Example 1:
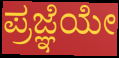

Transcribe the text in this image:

ಪ್ರಜ್ಞೆಯೇ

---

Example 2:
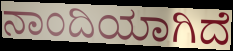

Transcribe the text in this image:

ನಾಂದಿಯಾಗಿದೆ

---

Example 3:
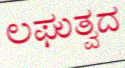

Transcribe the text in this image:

ಲಘುತ್ವದ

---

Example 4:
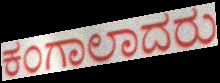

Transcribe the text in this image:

ಕಂಗಾಲಾದರು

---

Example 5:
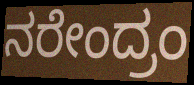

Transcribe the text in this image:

ನರೇಂದ್ರಂ